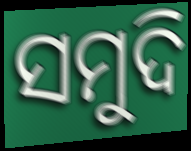
ସମୁଦି